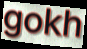
gokh